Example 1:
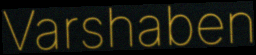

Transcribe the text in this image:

Varshaben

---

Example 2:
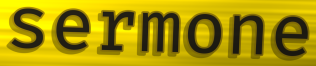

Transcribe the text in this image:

sermone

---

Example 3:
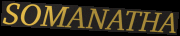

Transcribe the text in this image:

SOMANATHA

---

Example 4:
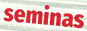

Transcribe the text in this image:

seminas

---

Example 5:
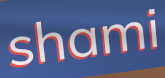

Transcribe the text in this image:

shami